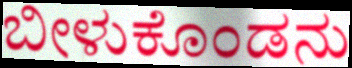
ಬೀಳುಕೊಂಡನು